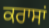
ਕਰਾਸਾਂ